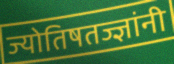
ज्योतिषतज्ज्ञांनी